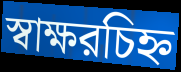
স্বাক্ষরচিহ্ন